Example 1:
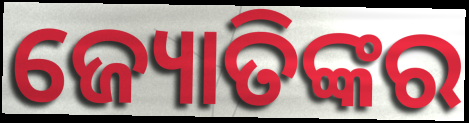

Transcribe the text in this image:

ଜ୍ୟୋତିଙ୍କର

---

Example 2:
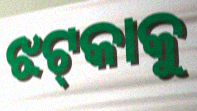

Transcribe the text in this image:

ଝଟ୍‌କାକୁ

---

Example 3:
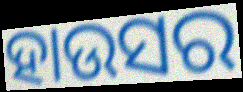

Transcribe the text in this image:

ହାଉସର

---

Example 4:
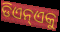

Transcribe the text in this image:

ଡିଏନ୍ଏକୁ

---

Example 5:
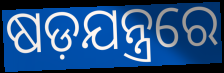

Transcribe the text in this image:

ଷଡ଼ଯନ୍ତ୍ରରେ